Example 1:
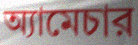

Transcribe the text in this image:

অ্যামেচার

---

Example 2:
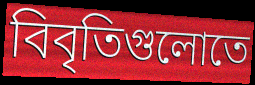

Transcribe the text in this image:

বিবৃতিগুলোতে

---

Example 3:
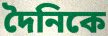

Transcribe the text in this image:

দৈনিকে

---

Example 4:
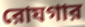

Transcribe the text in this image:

রোযগার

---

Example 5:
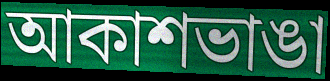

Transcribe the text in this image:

আকাশভাঙা